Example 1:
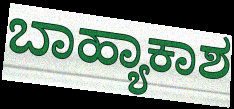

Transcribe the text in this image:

ಬಾಹ್ಯಾಕಾಶ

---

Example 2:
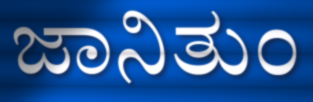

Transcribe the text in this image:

ಜಾನಿತುಂ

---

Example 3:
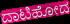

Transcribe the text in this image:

ದಾಟಿಹೋದ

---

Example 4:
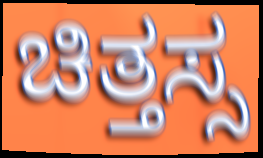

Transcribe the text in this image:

ಚಿತ್ತಸ್ಸ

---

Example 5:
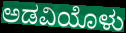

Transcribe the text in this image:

ಅಡವಿಯೊಳು